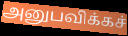
அனுபவிக்கச்